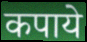
कपाये